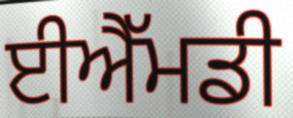
ਈਐੱਮਡੀ